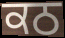
ਕਠ